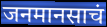
जनमानसाचं